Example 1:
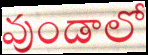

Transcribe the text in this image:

వుండాలో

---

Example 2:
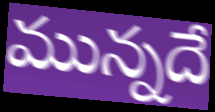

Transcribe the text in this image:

మున్నదే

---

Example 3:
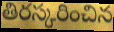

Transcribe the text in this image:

తిరస్కరించిన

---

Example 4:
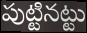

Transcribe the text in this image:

పుట్టినట్టు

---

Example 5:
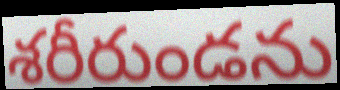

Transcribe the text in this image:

శరీరుండను